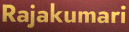
Rajakumari